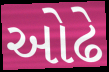
ઓઢે